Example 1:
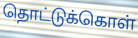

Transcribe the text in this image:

தொட்டுக்கொள்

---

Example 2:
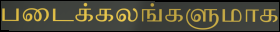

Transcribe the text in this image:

படைக்கலங்களுமாக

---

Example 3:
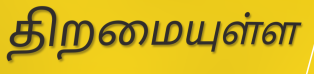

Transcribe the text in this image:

திறமையுள்ள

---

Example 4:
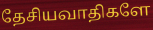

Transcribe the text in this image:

தேசியவாதிகளே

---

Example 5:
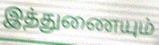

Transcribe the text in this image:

இத்துணையும்